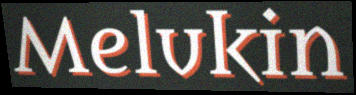
Melukin